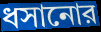
ধসানোর